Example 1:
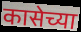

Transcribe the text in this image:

कासेच्या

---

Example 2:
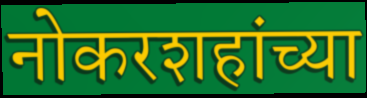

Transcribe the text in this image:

नोकरशहांच्या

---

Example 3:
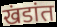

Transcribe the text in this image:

खंडांत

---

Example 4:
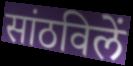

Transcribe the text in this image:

सांठविलें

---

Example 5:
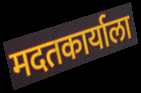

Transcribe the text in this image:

मदतकार्याला